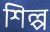
শিল্প